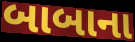
બાબાના